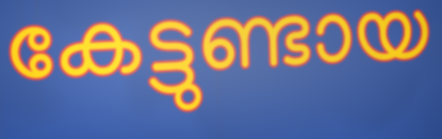
കേട്ടുണ്ടായ